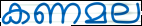
കണമല